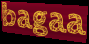
bagaa